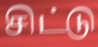
சிட்டு